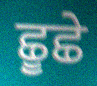
ਛੂਛੇ